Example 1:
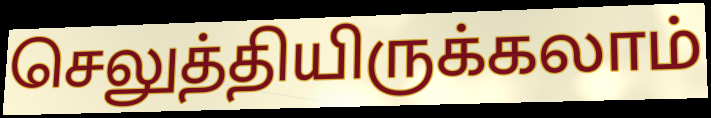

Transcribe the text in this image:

செலுத்தியிருக்கலாம்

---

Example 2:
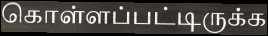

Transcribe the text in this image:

கொள்ளப்பட்டிருக்க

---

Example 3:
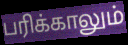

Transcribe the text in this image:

பரிக்காலும்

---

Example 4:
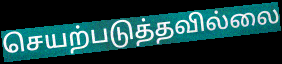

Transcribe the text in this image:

செயற்படுத்தவில்லை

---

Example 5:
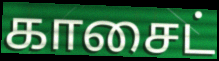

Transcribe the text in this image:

காசைட்